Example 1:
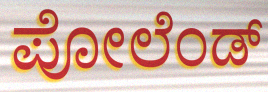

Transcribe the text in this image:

ಪೋಲೆಂಡ್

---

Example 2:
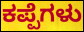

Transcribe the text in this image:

ಕಪ್ಪೆಗಳು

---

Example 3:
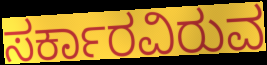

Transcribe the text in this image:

ಸರ್ಕಾರವಿರುವ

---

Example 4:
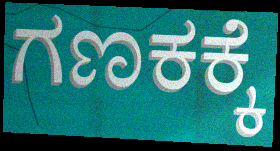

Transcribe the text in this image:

ಗಣಕಕ್ಕೆ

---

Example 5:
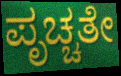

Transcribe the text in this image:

ಪೃಚ್ಚತೇ